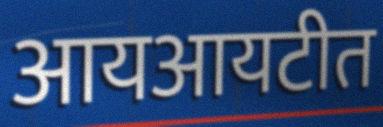
आयआयटीत